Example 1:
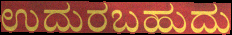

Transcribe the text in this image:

ಉದುರಬಹುದು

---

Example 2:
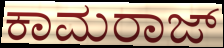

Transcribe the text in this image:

ಕಾಮರಾಜ್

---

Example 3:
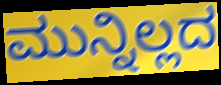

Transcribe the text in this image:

ಮುನ್ನಿಲ್ಲದ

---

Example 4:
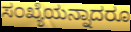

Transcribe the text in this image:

ಸಂಖ್ಯೆಯನ್ನಾದರೂ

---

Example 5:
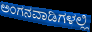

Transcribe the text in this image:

ಅಂಗನವಾಡಿಗಳಲ್ಲಿ